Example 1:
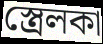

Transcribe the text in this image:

স্ত্রেলকা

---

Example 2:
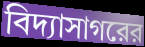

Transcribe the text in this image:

বিদ্যাসাগরের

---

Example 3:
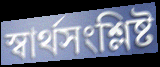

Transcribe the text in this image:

স্বার্থসংশ্লিষ্ট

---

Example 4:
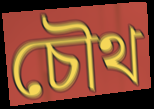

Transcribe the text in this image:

চৌথ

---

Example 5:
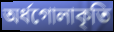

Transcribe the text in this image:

অর্ধগোলাকৃতি